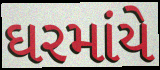
ઘરમાંયે